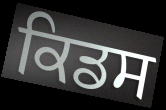
ਕਿਡਸ